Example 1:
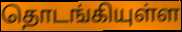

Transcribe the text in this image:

தொடங்கியுள்ள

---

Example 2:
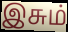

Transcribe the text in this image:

இசும்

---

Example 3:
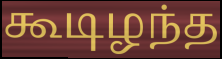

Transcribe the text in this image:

கூடிழந்த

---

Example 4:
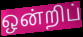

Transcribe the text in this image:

ஒன்றிப்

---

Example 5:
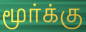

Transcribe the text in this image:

மூர்க்கு